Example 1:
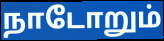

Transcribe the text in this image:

நாடோறும்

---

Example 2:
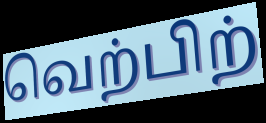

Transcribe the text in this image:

வெற்பிற்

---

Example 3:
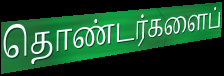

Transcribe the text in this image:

தொண்டர்களைப்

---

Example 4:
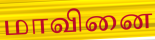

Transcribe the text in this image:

மாவினை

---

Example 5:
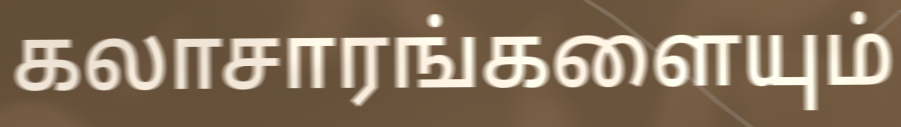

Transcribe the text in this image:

கலாசாரங்களையும்